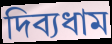
দিব্যধাম